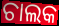
ଚାଲକ